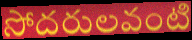
సోదరులవంటి